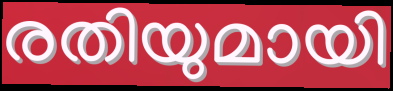
രതിയുമായി